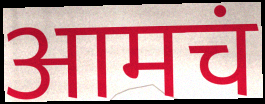
आमचं